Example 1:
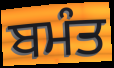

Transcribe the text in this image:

ਬਮੰਤ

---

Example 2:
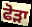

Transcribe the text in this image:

ਫੋੜਾ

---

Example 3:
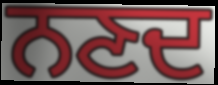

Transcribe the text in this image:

ਨਣਦ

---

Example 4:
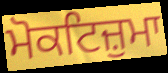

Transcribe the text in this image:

ਮੋਕਟਿਜ਼ੁਮਾ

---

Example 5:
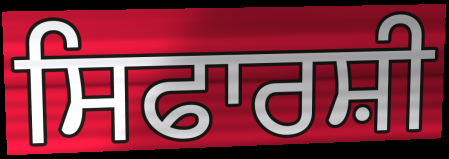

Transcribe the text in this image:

ਸਿਫਾਰਸ਼ੀ